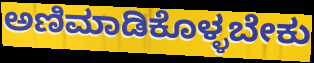
ಅಣಿಮಾಡಿಕೊಳ್ಳಬೇಕು